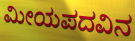
ಮೀಯಪದವಿನ